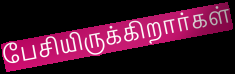
பேசியிருக்கிறார்கள்